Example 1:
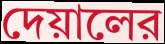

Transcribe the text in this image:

দেয়ালের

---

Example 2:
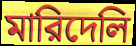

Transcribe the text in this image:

মারিদেলি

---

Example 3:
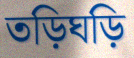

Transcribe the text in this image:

তড়িঘড়ি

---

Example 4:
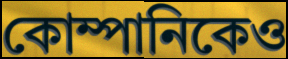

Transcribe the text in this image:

কোম্পানিকেও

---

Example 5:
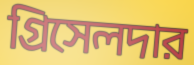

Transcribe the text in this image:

গ্রিসেলদার